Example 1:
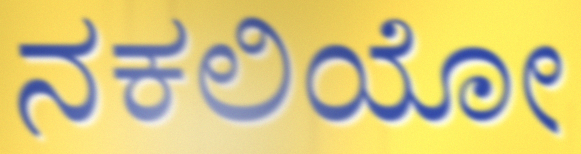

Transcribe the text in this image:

ನಕಲಿಯೋ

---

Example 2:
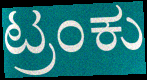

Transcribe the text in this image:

ಟ್ರಂಕು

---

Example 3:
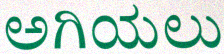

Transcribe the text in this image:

ಅಗಿಯಲು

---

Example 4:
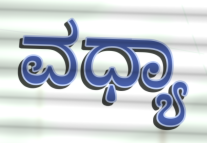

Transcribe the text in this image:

ವಧ್ಯಾ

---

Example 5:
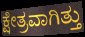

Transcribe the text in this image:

ಕ್ಷೇತ್ರವಾಗಿತ್ತು